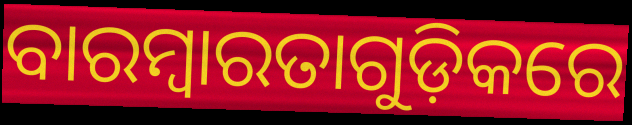
ବାରମ୍ବାରତାଗୁଡ଼ିକରେ